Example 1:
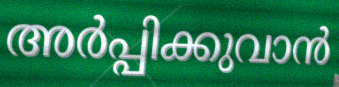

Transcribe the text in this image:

അർപ്പിക്കുവാൻ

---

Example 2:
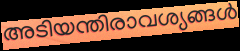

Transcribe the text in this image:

അടിയന്തിരാവശ്യങ്ങൾ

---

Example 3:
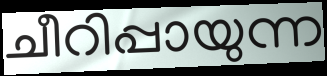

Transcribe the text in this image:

ചീറിപ്പായുന്ന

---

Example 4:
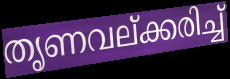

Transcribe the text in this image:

തൃണവല്ക്കരിച്ച്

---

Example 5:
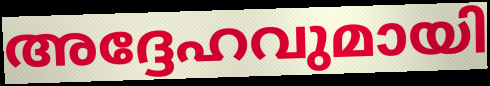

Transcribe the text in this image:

അദ്ദേഹവുമായി